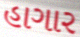
હાગાર